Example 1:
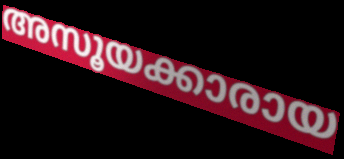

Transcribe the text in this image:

അസൂയക്കാരായ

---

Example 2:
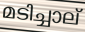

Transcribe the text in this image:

മടിച്ചാല്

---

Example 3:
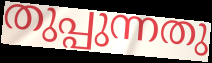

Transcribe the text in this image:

തുപ്പുന്നതു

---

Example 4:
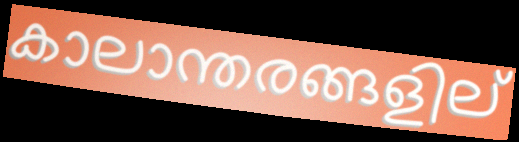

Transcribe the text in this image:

കാലാന്തരങ്ങളില്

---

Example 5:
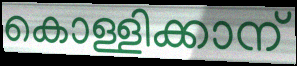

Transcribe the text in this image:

കൊള്ളിക്കാന്